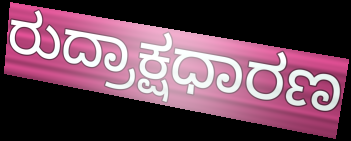
ರುದ್ರಾಕ್ಷಧಾರಣ